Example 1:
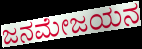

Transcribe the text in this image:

ಜನಮೇಜಯನ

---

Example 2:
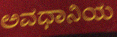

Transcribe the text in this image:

ಅವಧಾನಿಯ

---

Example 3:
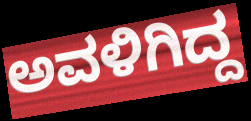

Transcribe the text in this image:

ಅವಳಿಗಿದ್ದ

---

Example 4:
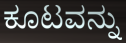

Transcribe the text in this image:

ಕೂಟವನ್ನು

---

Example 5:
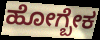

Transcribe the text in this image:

ಹೋಗ್ಬೇಕ